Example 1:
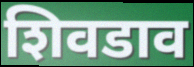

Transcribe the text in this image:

शिवडाव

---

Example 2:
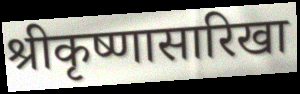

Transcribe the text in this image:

श्रीकृष्णासारिखा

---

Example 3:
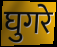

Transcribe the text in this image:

घुगरे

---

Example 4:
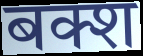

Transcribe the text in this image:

बक्श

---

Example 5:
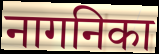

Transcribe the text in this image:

नागनिका